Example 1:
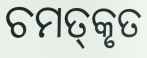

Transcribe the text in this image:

ଚମତ୍‍କୃତ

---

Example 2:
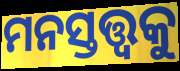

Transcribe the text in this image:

ମନସ୍ତତ୍ତ୍ୱକୁ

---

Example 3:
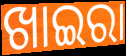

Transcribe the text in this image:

ଖାଇରା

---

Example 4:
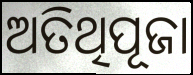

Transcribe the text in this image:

ଅତିଥିପୂଜା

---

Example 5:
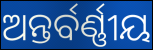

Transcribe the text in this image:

ଅନ୍ତର୍ବର୍ଣ୍ଣୀୟ